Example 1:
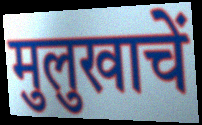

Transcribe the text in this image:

मुलुखाचें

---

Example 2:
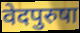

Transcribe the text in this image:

वेदपुरुषा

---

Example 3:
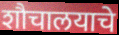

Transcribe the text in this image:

शौचालयाचे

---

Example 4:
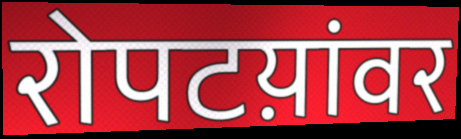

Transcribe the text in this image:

रोपटय़ांवर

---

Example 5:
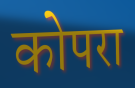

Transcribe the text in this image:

कोपरा